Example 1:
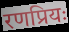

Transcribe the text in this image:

रणप्रियः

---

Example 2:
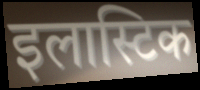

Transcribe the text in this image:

इलास्टिक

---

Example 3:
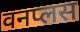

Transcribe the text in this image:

वनप्लस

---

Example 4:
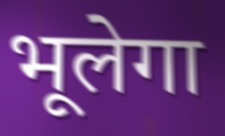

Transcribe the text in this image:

भूलेगा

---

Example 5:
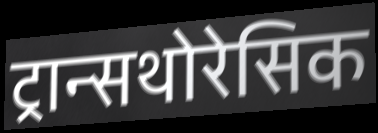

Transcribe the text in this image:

ट्रान्सथोरेसिक